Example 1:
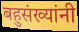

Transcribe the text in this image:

बहुसंख्यांनी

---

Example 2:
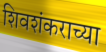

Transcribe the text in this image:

शिवशंकराच्या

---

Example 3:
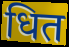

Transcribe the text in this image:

धित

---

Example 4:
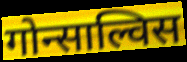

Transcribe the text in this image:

गोन्साल्विस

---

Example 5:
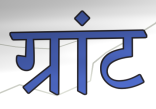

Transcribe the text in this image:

ग्रांट